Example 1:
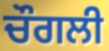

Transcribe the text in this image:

ਚੌਗਲੀ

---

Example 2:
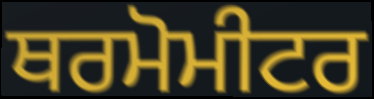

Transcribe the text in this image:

ਥਰਮੋਮੀਟਰ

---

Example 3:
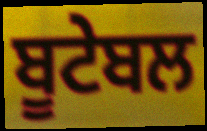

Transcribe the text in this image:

ਬੂਟੇਬਲ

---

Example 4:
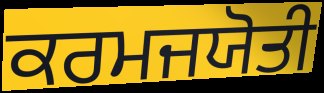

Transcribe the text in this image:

ਕਰਮਜਯੋਤੀ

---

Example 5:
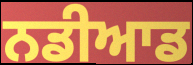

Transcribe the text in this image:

ਨਡੀਆਡ